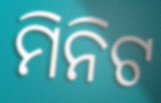
ମିନିଟ